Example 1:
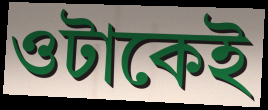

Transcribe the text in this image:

ওটাকেই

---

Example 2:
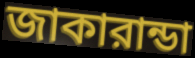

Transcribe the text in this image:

জাকারান্ডা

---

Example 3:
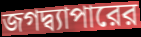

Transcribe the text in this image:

জগদ্ব্যাপারের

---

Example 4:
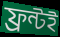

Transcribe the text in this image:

ফ্রন্টই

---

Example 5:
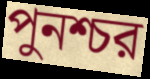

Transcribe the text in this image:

পুনশ্চর